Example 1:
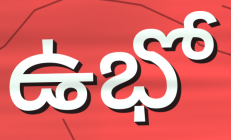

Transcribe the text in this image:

ఉభో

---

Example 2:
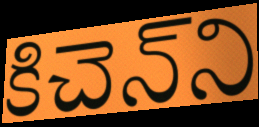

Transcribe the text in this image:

కిచెన్‌ని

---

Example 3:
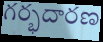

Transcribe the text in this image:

గర్భదారణ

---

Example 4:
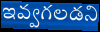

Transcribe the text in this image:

ఇవ్వగలడని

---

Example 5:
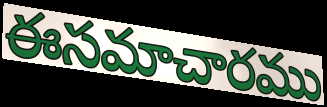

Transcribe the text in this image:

ఈసమాచారము